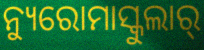
ନ୍ୟୁରୋମାସ୍କୁଲାର୍